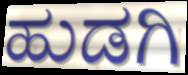
ಹುಡಗಿ